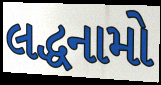
લદ્ધનામો